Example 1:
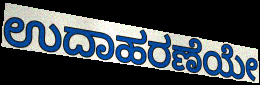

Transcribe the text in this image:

ಉದಾಹರಣೆಯೇ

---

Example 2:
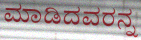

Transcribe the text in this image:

ಮಾಡಿದವರನ್ನ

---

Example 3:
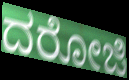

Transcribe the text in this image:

ದರೋಜಿ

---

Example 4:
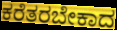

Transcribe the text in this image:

ಕರೆತರಬೇಕಾದ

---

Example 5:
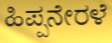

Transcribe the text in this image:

ಹಿಪ್ಪನೇರಳೆ